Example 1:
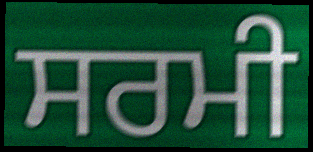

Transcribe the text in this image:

ਸਰਮੀ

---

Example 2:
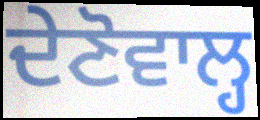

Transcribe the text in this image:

ਦੇਣੋਵਾਲ੍ਹ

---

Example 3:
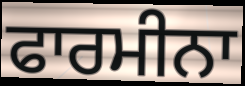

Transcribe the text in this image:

ਫਾਰਮੀਨਾ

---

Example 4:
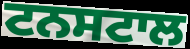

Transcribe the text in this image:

ਟਨਸਟਾਲ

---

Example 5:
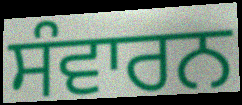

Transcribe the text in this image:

ਸੰਵਾਰਨ